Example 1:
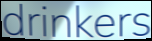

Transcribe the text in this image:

drinkers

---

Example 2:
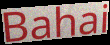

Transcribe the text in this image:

Bahai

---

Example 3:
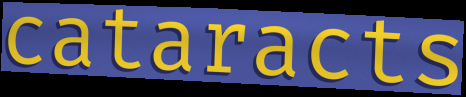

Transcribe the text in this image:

cataracts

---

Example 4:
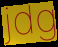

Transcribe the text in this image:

jdg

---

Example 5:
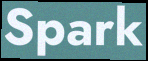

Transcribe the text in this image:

Spark